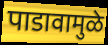
पाडावामुळे